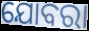
ଯୋବରା